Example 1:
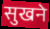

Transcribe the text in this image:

सुखने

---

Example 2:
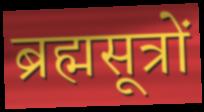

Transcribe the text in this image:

ब्रह्मसूत्रों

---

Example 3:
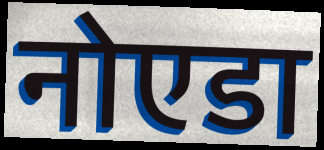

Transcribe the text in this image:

नोएडा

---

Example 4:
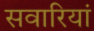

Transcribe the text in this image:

सवारियां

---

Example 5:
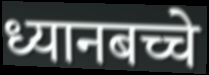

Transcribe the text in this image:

ध्यानबच्चे